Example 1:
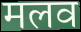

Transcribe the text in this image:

मलव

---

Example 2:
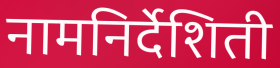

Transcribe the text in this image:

नामनिर्देशिती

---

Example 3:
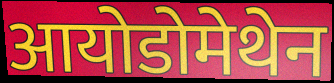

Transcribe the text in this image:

आयोडोमेथेन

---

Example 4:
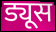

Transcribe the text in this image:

ड्यूस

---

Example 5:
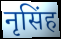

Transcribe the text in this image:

नृसिंह